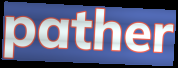
pather